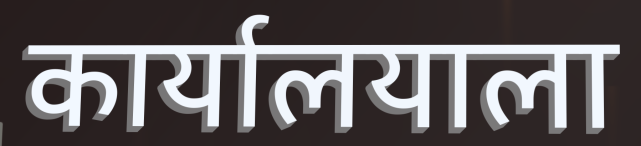
कार्यालयाला